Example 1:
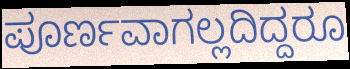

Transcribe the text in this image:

ಪೂರ್ಣವಾಗಲ್ಲದಿದ್ದರೂ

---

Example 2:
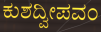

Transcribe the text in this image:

ಕುಶದ್ವೀಪವಂ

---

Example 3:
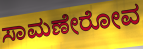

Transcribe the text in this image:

ಸಾಮಣೇರೋವ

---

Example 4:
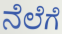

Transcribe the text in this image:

ನೆಲೆಗೆ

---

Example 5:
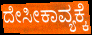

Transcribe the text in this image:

ದೇಸೀಕಾವ್ಯಕ್ಕೆ